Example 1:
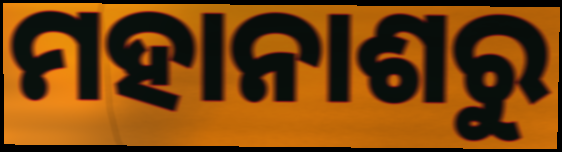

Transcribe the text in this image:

ମହାନାଶରୁ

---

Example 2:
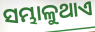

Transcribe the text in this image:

ସମ୍ଭାଳୁଥାଏ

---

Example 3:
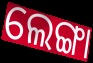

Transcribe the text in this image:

ଲେଙ୍ଗା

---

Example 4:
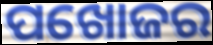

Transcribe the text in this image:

ପଖୋଜର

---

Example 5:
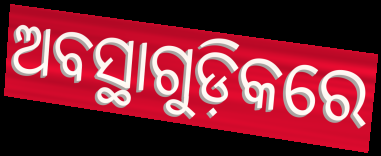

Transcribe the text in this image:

ଅବସ୍ଥାଗୁଡ଼ିକରେ